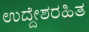
ಉದ್ದೇಶರಹಿತ